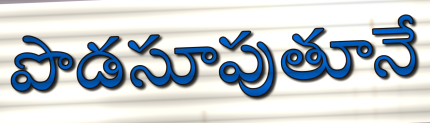
పొడసూపుతూనే